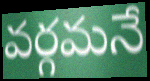
వర్గమనే